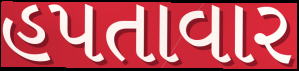
હપતાવાર